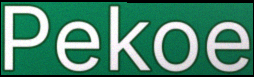
Pekoe